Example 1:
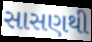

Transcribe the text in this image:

સાસણથી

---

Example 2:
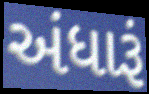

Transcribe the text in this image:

અંધારૂં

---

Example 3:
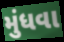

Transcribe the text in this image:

મુંધવા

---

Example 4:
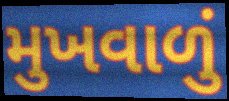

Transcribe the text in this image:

મુખવાળું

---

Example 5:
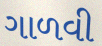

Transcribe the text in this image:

ગાળવી